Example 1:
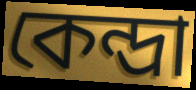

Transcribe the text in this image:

কেন্দ্রা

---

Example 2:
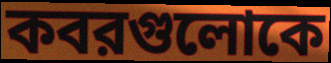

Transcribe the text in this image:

কবরগুলোকে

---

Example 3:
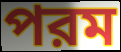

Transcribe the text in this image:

পরম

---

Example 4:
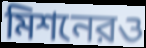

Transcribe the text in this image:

মিশনেরও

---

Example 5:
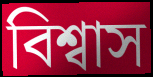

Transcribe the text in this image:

বিশ্বাস